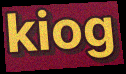
kiog